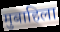
मुबाहिला